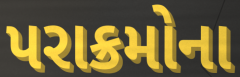
પરાક્રમોના